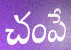
చంపే